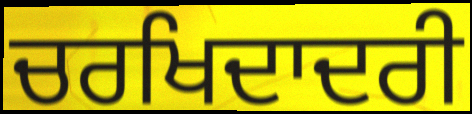
ਚਰਖਿਦਾਦਰੀ